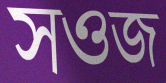
সওজ